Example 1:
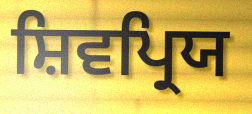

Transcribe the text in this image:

ਸ਼ਿਵਪ੍ਰਿਯ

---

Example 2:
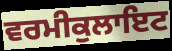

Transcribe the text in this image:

ਵਰਮੀਕੁਲਾਇਟ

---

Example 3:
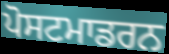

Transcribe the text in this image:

ਪੋਸਟਮਾਡਰਨ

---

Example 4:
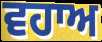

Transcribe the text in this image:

ਵਹਾਅ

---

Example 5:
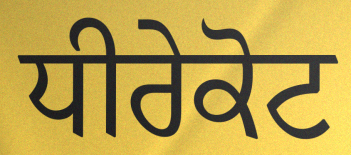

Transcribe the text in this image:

ਧੀਰੇਕੋਟ